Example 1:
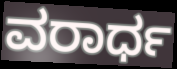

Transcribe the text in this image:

ವರಾರ್ಧ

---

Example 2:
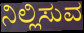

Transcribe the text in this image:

ನಿಲ್ಲಿಸುವ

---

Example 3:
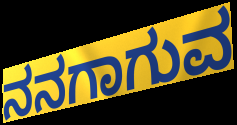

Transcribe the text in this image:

ನನಗಾಗುವ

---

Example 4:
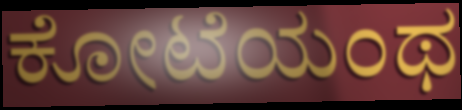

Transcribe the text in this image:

ಕೋಟೆಯಂಥ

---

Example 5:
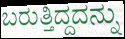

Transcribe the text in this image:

ಬರುತ್ತಿದ್ದದನ್ನು